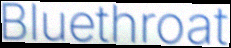
Bluethroat